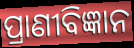
ପ୍ରାଣୀବିଜ୍ଞାନ